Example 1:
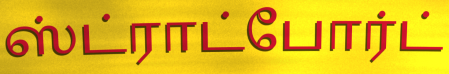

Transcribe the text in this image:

ஸ்ட்ராட்போர்ட்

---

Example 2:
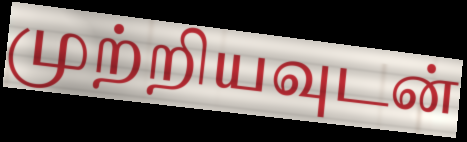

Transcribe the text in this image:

முற்றியவுடன்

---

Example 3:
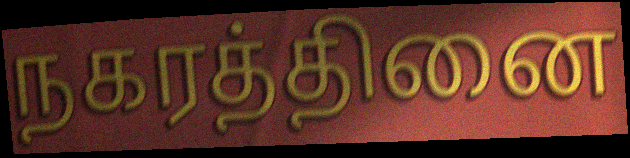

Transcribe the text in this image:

நகரத்தினை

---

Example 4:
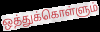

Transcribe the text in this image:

ஒத்துக்கொள்ளும்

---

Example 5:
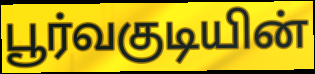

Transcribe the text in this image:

பூர்வகுடியின்